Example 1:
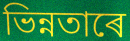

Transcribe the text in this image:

ভিন্নতাৰে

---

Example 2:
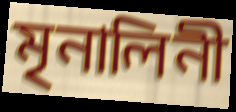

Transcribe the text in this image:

মৃনালিনী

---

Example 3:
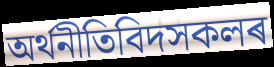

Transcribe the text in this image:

অৰ্থনীতিবিদসকলৰ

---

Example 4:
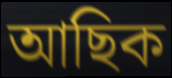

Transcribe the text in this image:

আছিক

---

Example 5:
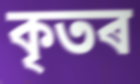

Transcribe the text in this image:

কৃতৰ